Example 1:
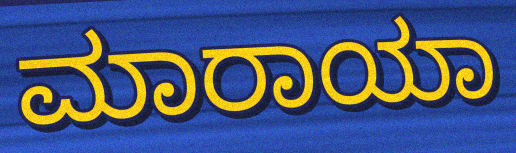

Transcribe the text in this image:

ಮಾರಾಯಾ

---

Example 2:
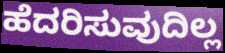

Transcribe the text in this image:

ಹೆದರಿಸುವುದಿಲ್ಲ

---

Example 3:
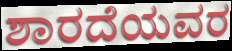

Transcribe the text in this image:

ಶಾರದೆಯವರ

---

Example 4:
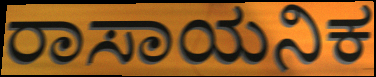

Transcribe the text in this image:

ರಾಸಾಯನಿಕ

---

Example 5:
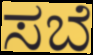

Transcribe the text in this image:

ಸಬೆ